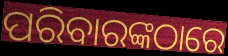
ପରିବାରଙ୍କଠାରେ